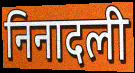
निनादली